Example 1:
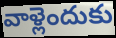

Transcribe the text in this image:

వాళ్లెందుకు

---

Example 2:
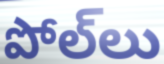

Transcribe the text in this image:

పోల్‌లు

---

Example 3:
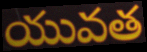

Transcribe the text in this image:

యువత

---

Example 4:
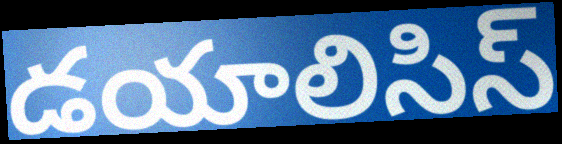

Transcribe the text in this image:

డయాలిసిస్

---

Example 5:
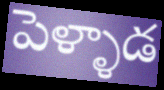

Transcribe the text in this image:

పెళ్ళాడ